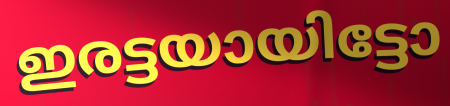
ഇരട്ടയായിട്ടോ